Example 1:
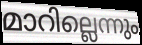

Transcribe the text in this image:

മാറില്ലെന്നും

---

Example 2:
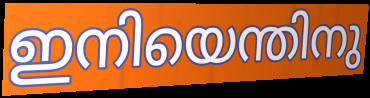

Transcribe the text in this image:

ഇനിയെന്തിനു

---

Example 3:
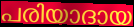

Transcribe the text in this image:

പരിയാദായ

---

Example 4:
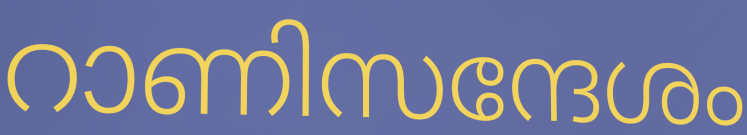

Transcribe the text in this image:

റാണിസന്ദേശം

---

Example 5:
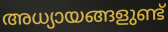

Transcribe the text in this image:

അധ്യായങ്ങളുണ്ട്